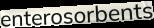
enterosorbents